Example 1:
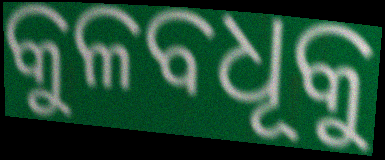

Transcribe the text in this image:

କୁଳବଧୂକୁ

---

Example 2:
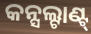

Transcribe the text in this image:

କନ୍ସଲ୍ଟାଣ୍ଟ୍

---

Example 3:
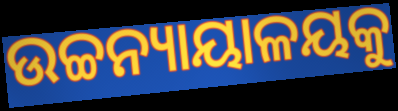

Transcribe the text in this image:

ଉଚ୍ଚନ୍ୟାୟାଳୟକୁ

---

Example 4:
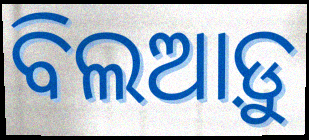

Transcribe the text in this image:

ବିଲଆଡ଼ୁ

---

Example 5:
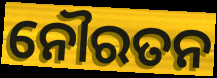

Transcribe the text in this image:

ନୌରତନ